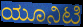
ಯೂನಿಟಿ